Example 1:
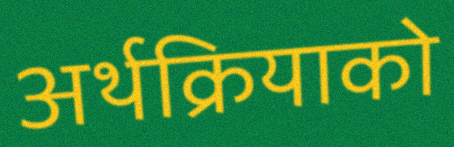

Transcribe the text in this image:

अर्थक्रियाको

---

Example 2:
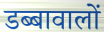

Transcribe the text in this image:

डब्बावालों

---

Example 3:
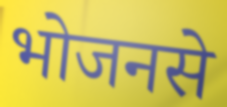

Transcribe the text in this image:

भोजनसे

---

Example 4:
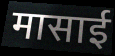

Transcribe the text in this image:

मासाई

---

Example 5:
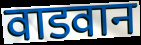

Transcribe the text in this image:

वाडवान